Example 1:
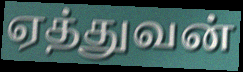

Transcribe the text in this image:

ஏத்துவன்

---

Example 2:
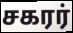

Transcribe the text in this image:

சகரர்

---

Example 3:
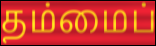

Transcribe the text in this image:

தம்மைப்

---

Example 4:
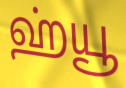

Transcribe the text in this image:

ஹ்யூ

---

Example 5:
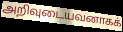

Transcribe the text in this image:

அறிவுடையவனாகக்